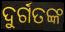
ଦୁର୍ଗତଙ୍କ